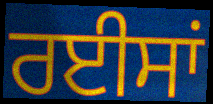
ਰਈਸਾਂ